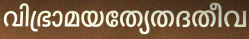
വിഭ്രാമയത്യേതദതീവ